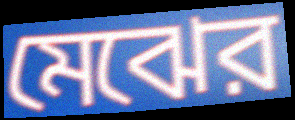
মেঝের